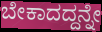
ಬೇಕಾದದ್ದನ್ನೇ